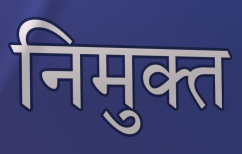
निमुक्त